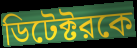
ডিটেক্টরকে